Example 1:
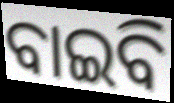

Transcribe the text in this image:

ବାଇବି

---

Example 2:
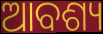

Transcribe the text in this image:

ଆବଶ୍ୟ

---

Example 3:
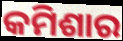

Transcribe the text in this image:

କମିଶାର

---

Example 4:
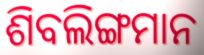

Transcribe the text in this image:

ଶିବଲିଙ୍ଗମାନ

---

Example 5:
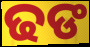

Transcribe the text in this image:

ଢଙ